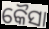
କୈସା